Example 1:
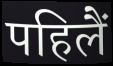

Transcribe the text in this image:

पहिलैं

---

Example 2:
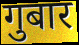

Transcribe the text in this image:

गुबार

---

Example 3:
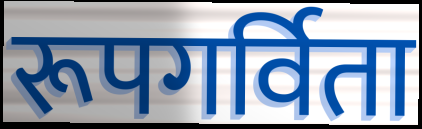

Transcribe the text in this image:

रूपगर्विता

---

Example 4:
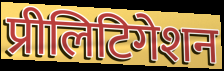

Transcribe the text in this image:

प्रीलिटिगेशन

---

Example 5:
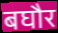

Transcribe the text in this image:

बघौर